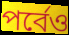
পর্বেও